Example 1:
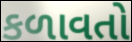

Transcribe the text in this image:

કળાવતો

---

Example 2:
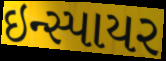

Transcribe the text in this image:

ઇન્સ્પાયર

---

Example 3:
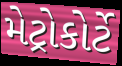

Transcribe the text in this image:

મેટ્રોકોર્ટે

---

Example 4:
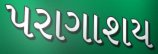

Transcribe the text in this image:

પરાગાશય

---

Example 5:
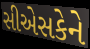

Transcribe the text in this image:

સીએસકેને